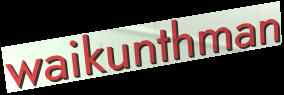
waikunthman